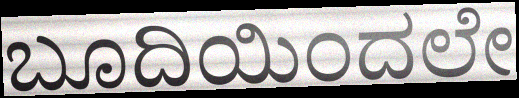
ಬೂದಿಯಿಂದಲೇ